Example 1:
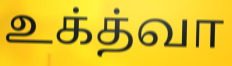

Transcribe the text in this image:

உக்த்வா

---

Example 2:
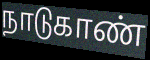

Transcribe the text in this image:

நாடுகாண்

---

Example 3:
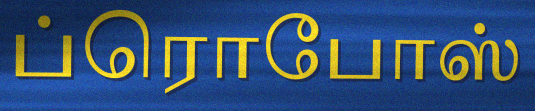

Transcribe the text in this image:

ப்ரொபோஸ்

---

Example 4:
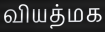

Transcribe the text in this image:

வியத்மக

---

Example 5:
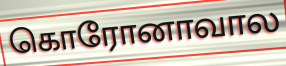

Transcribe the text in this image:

கொரோனாவால